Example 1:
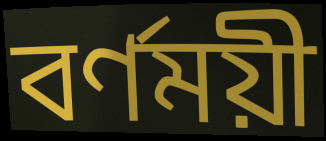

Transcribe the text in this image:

বর্ণময়ী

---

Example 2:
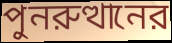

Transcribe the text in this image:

পুনরুত্থানের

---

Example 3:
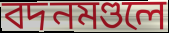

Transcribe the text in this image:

বদনমণ্ডলে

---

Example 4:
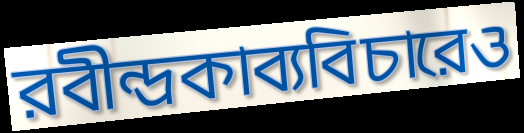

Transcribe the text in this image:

রবীন্দ্রকাব্যবিচারেও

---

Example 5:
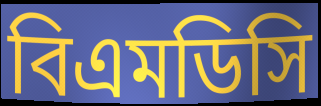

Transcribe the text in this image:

বিএমডিসি